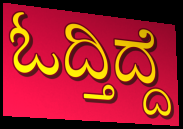
ಓದ್ತಿದ್ದೆ